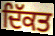
ਦਿੱਕਤ